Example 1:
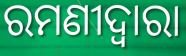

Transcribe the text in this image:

ରମଣୀଦ୍ୱାରା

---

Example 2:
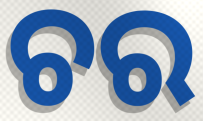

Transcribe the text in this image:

ଚର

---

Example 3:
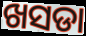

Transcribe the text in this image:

ଖସଡା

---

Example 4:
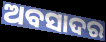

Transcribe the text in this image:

ଅବସାଦର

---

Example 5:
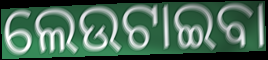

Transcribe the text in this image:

ଲେଉଟାଇବା